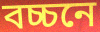
বচ্চনে